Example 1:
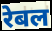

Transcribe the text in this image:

रेबल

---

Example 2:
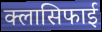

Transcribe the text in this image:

क्लासिफाई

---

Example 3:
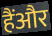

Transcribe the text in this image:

हैंऔर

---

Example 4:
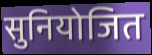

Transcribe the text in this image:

सुनियोजित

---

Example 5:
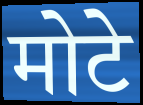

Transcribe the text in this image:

मोटे